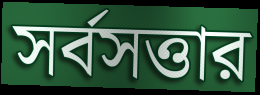
সর্বসত্তার